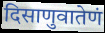
दिसाणुवातेणं